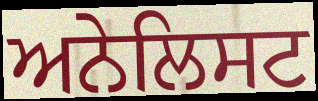
ਅਨੇਲਿਸਟ